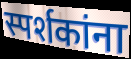
स्पर्शकांना